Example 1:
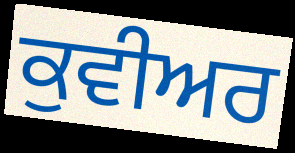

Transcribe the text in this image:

ਕੁਵੀਅਰ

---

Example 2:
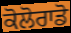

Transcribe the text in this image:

ਕੋਲੋਰਾਡੋ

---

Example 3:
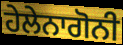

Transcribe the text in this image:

ਹੇਲੇਨਾਗੋਨੀ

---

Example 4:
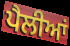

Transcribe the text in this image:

ਪੈਲੀਆਂ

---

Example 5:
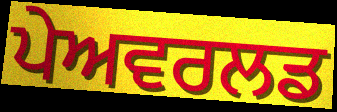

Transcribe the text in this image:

ਪੇਅਵਰਲਡ